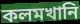
কলমখানি